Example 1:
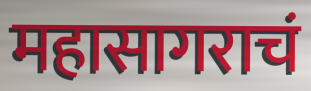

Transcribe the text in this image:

महासागराचं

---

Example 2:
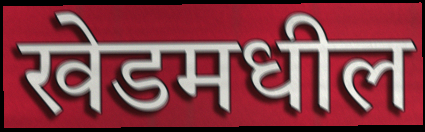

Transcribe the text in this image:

खेडमधील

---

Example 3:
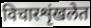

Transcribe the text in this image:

विचारशृंखलेत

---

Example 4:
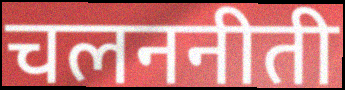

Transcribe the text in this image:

चलननीती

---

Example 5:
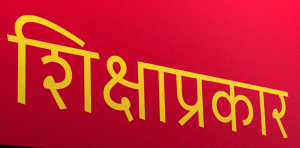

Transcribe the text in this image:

शिक्षाप्रकार